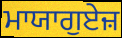
ਮਾਯਾਗੁਏਜ਼